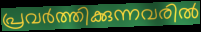
പ്രവർത്തിക്കുന്നവരിൽ